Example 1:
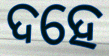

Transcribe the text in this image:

ଦହେ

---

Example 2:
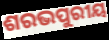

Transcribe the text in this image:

ଶରଭପୁରୀୟ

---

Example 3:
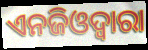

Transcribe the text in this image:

ଏନଜିଓଦ୍ୱାରା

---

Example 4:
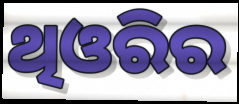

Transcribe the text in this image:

ଥିଓରିର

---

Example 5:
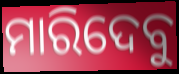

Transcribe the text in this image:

ମାରିଦେବୁ